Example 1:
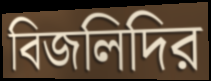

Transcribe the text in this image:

বিজলিদির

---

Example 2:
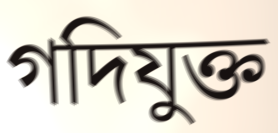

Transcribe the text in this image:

গদিযুক্ত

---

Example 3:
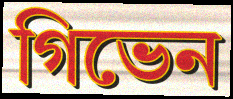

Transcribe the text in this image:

গিভেন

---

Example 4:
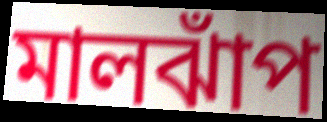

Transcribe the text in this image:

মালঝাঁপ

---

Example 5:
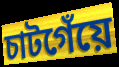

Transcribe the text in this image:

চাটগেঁয়ে